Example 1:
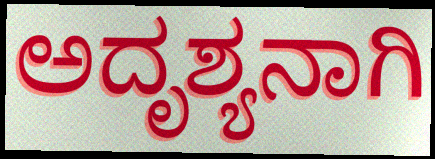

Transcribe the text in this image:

ಅದೃಶ್ಯನಾಗಿ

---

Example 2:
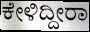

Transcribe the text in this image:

ಕೇಳಿದ್ದೀರಾ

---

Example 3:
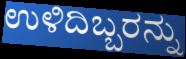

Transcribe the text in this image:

ಉಳಿದಿಬ್ಬರನ್ನು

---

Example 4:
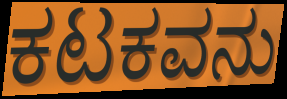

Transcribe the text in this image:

ಕಟಕವನು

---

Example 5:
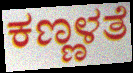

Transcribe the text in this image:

ಕಣ್ಣಳತೆ